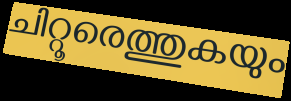
ചിറ്റൂരെത്തുകയും